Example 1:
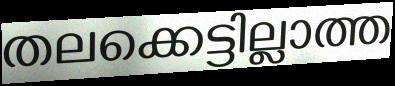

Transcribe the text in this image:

തലക്കെട്ടില്ലാത്ത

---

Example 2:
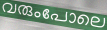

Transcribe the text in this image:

വരുംപോലെ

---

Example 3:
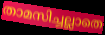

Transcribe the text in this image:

താമസിച്ചല്ലാതെ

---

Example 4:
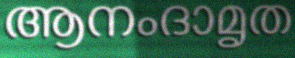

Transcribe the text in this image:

ആനംദാമൃത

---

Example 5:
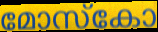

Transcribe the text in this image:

മോസ്‌കോ